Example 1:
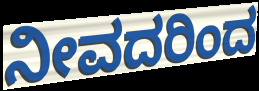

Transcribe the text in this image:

ನೀವದರಿಂದ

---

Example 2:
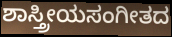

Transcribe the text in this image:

ಶಾಸ್ತ್ರೀಯಸಂಗೀತದ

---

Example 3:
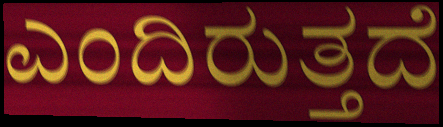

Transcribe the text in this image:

ಎಂದಿರುತ್ತದೆ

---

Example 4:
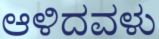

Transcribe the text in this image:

ಆಳಿದವಳು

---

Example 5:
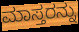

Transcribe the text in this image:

ಮಾಸ್ತರನ್ನು